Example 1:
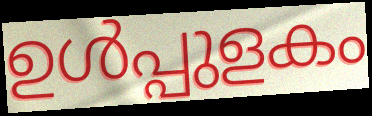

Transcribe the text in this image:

ഉൾപ്പുളകം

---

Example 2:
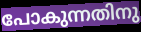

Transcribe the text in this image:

പോകുന്നതിനു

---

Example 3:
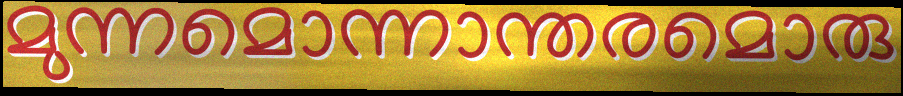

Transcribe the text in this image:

മുന്നമൊന്നാന്തരമൊരു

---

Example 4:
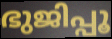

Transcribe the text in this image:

ഭുജിപ്പൂ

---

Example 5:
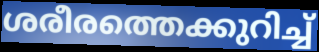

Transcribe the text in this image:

ശരീരത്തെക്കുറിച്ച്